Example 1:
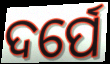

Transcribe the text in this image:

ଦର୍ପେ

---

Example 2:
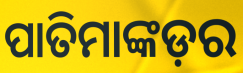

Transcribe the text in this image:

ପାତିମାଙ୍କଡ଼ର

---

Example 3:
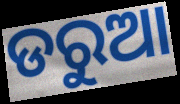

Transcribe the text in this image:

ଡରୁଆ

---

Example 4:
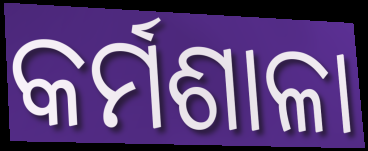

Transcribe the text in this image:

କର୍ମଶାଳା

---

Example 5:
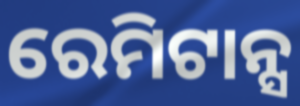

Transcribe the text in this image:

ରେମିଟାନ୍ସ